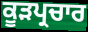
ਕੂੜਪ੍ਰਚਾਰ